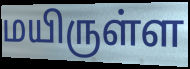
மயிருள்ள